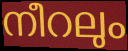
നീറലും